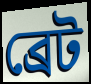
ব্রেট